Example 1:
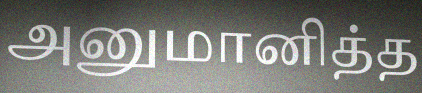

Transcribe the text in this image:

அனுமானித்த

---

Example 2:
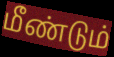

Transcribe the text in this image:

மீண்டும்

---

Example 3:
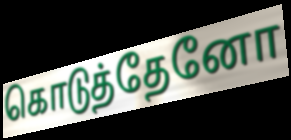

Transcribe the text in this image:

கொடுத்தேனோ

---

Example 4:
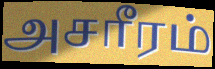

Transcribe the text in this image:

அசரீரம்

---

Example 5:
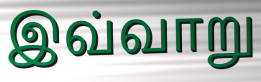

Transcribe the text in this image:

இவ்வாறு